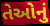
તેઓનું